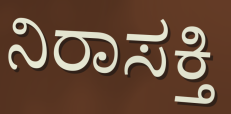
ನಿರಾಸಕ್ತಿ